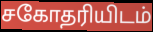
சகோதரியிடம்